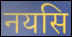
नयसि